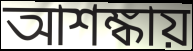
আশঙ্কায়